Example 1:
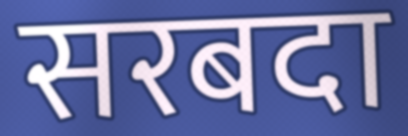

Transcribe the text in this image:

सरबदा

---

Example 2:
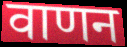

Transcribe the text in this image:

वाणन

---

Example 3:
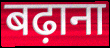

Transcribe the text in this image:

बढ़ाना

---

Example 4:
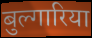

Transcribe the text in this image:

बुल्गारिया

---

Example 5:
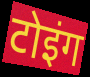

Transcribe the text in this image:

टोइंग